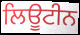
ਲਿਊਟੀਨ